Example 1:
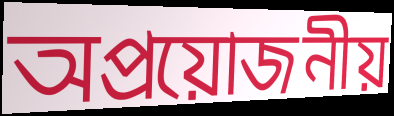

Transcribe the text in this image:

অপ্রয়োজনীয়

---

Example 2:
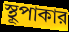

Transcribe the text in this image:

স্থূপাকার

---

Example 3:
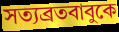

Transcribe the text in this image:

সত্যব্রতবাবুকে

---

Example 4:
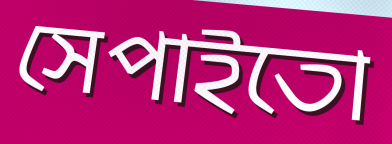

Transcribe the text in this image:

সেপাইতো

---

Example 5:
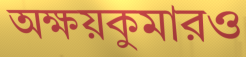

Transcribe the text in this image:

অক্ষয়কুমারও